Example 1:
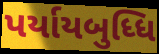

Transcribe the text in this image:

પર્યાયબુધ્ધિ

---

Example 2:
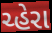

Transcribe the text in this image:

ચ્હેરા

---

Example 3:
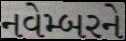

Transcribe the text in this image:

નવેમ્બરને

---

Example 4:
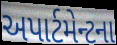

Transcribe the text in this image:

અપાર્ટમેન્ટના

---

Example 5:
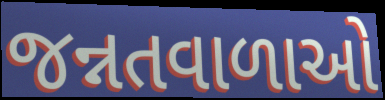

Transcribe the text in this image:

જન્નતવાળાઓ